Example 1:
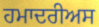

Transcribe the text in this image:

ਹਮਾਦਰੀਅਸ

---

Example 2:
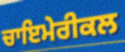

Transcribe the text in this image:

ਚਾਇਮੇਰੀਕਲ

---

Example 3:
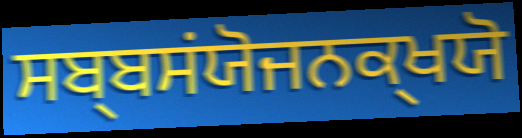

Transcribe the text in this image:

ਸਬ੍ਬਸਂਯੋਜਨਕ੍ਖਯੋ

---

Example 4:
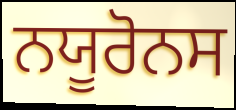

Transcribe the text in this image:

ਨਯੂਰੋਨਸ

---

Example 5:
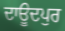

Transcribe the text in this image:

ਦਾਊਦਪੁਰ